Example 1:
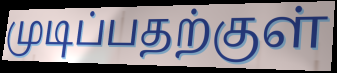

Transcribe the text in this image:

முடிப்பதற்குள்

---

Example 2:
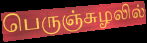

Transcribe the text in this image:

பெருஞ்சுழலில்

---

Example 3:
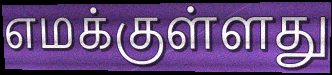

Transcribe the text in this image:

எமக்குள்ளது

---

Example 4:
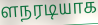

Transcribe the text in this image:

ளநரடியாக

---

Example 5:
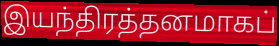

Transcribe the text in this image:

இயந்திரத்தனமாகப்